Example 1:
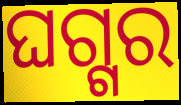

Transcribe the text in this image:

ଘଗ୍ଗର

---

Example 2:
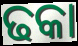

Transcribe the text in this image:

ଢକା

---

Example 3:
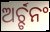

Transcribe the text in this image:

ଅର୍ଚ୍ଚନଂ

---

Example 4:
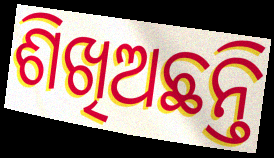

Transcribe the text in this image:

ଶିଖିଅଛନ୍ତି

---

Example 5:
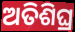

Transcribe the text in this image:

ଅତିଶିଘ୍ର